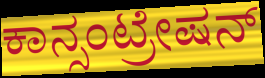
ಕಾನ್ಸಂಟ್ರೇಷನ್